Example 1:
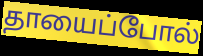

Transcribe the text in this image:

தாயைப்போல்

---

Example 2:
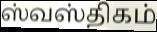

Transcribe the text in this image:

ஸ்வஸ்திகம்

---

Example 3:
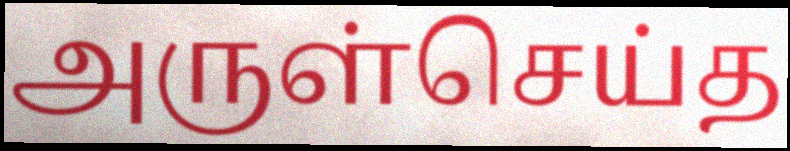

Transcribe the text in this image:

அருள்செய்த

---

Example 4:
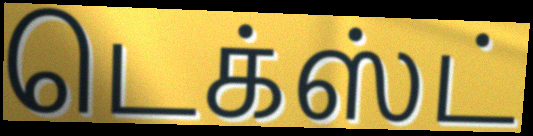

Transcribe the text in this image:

டெக்ஸ்ட்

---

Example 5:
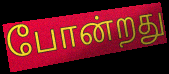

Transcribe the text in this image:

போன்றது